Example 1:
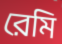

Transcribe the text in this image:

রেমি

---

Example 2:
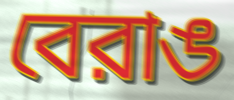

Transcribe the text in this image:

বেরাঙ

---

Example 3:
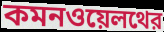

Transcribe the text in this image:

কমনওয়েলথের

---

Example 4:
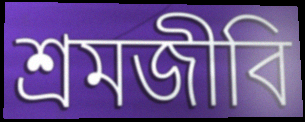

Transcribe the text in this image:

শ্রমজীবি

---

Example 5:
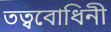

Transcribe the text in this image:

তত্ববোধিনী